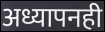
अध्यापनही